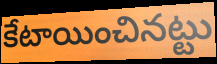
కేటాయించినట్టు